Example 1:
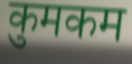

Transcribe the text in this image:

कुमकम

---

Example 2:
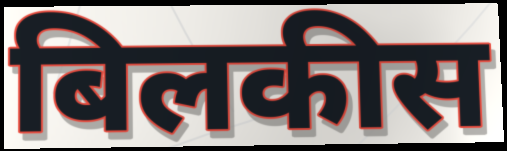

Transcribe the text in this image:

बिलकीस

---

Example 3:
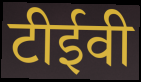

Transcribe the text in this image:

टीईवी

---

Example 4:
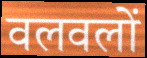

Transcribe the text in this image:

वलवलों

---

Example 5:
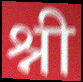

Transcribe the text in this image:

श्नी